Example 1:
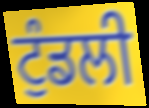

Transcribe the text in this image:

ਟੁੰਡਲੀ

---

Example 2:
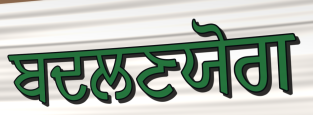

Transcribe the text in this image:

ਬਦਲਣਯੋਗ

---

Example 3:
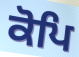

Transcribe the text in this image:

ਕੋਪਿ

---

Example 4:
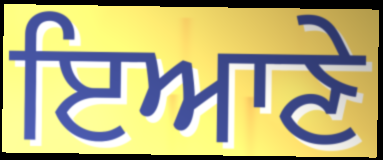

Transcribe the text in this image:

ਇਆਣੇ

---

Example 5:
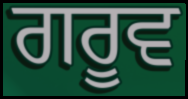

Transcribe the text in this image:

ਗਰੂਵ